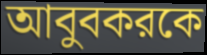
আবুবকরকে